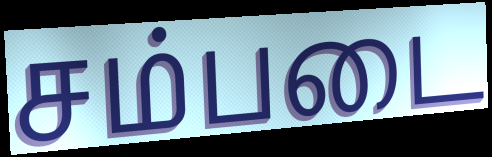
சம்படை